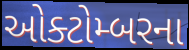
ઓક્ટોમ્બરના